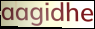
aagidhe